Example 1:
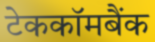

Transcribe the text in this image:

टेककॉमबैंक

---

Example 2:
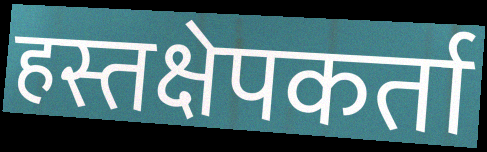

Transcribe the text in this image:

हस्तक्षेपकर्ता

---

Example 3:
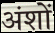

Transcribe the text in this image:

अंशों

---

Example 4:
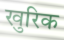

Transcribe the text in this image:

खुरिक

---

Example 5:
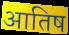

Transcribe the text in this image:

आतिष